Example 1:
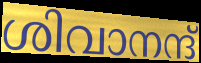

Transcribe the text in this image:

ശിവാനന്ദ്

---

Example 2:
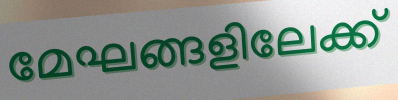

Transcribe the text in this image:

മേഘങ്ങളിലേക്ക്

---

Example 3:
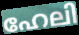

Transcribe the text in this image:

ഹേലി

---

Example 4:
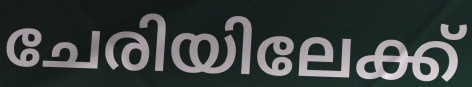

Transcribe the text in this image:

ചേരിയിലേക്ക്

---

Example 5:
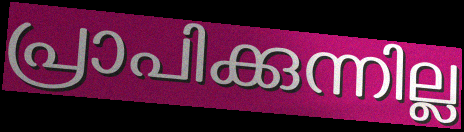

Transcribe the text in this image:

പ്രാപിക്കുന്നില്ല